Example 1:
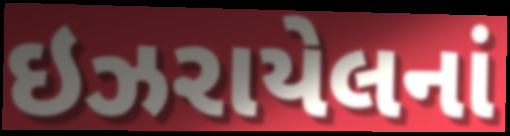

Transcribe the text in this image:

ઇઝરાયેલનાં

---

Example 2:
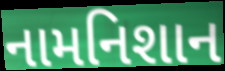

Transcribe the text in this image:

નામનિશાન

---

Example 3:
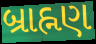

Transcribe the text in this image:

બ્રાહ્નણ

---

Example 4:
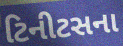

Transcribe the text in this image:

ટિનીટસના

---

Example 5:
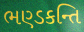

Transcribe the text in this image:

ભણ્ડકન્તિ